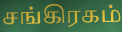
சங்கிரகம்